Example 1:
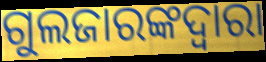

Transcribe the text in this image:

ଗୁଲଜାରଙ୍କଦ୍ୱାରା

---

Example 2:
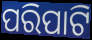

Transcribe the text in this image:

ପରିପାଟି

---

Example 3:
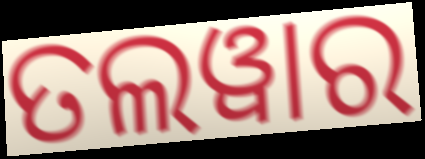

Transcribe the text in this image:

ତଲୱାର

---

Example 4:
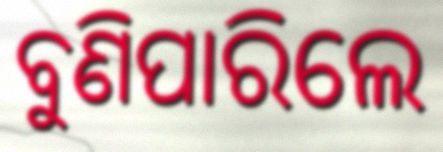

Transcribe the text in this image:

ବୁଣିପାରିଲେ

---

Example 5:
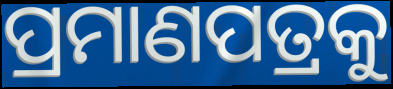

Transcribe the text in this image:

ପ୍ରମାଣପତ୍ରକୁ